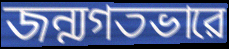
জন্মগতভাৱে